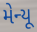
મેન્યૂ